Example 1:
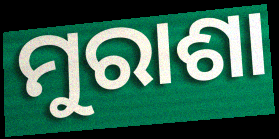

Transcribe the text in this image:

ମୁରାଶା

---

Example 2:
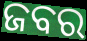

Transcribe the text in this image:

ଜବର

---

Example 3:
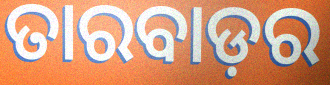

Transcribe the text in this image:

ତାରବାଡ଼ର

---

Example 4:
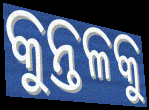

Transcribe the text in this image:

କୁନ୍ତଳକୁ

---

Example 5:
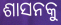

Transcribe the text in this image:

ଶାସନକୁ